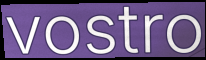
vostro